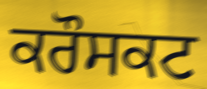
ਕਰੌਸਕਟ